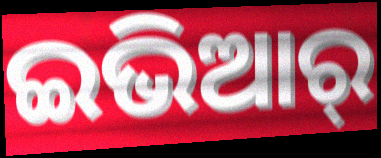
ଇଭିଆର୍